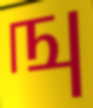
ஙு